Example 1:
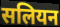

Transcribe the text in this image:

सलियन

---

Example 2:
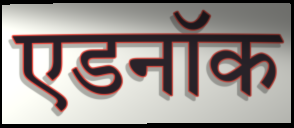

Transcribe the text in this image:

एडनॉक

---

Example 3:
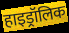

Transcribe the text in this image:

हाइड्रॉलिक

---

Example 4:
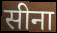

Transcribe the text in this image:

सीना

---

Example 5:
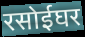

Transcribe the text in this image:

रसोईघर